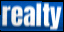
realty